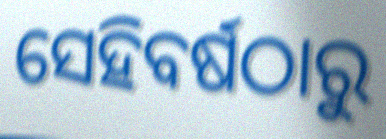
ସେହିବର୍ଷଠାରୁ